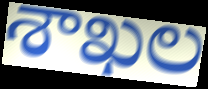
శాఖల